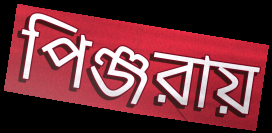
পিঞ্জরায়